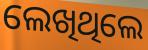
ଲେଖିଥିଲେ